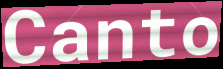
Canto